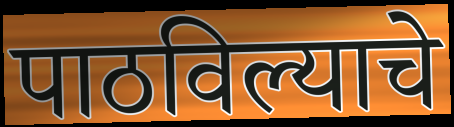
पाठविल्याचे